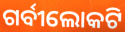
ଗର୍ବୀଲୋକଟି